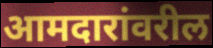
आमदारांवरील